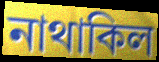
নাথাকিল